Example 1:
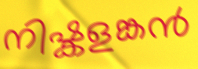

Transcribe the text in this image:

നിഷ്കളങ്കൻ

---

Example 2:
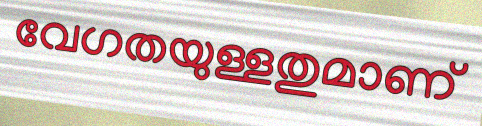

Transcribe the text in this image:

വേഗതയുള്ളതുമാണ്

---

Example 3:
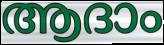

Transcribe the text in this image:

ആദാം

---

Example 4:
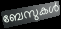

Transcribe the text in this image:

ബേസുകൾ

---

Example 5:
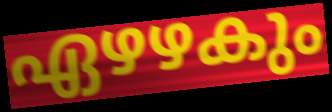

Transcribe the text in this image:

ഏഴഴകും